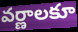
వర్ణాలకూ